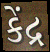
કેંદ્ર